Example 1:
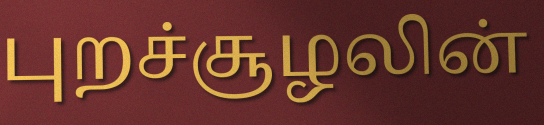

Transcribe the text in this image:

புறச்சூழலின்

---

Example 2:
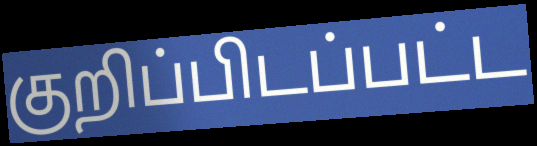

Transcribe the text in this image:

குறிப்பிடப்பட்ட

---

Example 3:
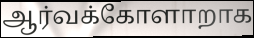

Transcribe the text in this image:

ஆர்வக்கோளாறாக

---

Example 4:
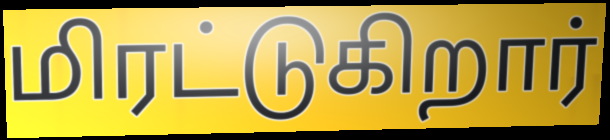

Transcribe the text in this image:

மிரட்டுகிறார்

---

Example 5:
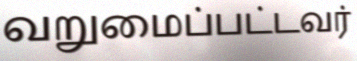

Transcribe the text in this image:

வறுமைப்பட்டவர்